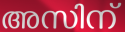
അസിന്